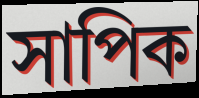
সাপিক